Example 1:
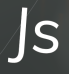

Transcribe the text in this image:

Js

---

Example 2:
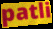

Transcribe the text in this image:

patli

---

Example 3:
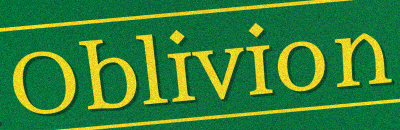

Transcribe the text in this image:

Oblivion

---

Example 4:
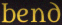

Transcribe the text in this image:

bend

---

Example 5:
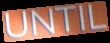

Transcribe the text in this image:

UNTIL